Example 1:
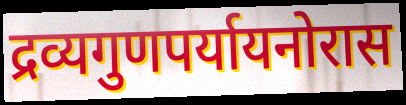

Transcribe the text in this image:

द्रव्यगुणपर्यायनोरास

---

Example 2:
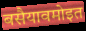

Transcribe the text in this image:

बसैयावमोइत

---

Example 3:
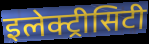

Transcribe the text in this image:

इलेक्ट्रीसिटी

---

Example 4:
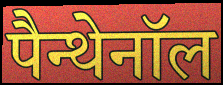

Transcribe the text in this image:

पैन्थेनॉल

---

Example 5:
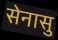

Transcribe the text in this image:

सेनासु